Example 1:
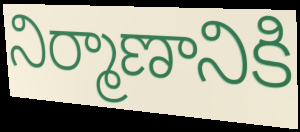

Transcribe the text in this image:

నిర్మాణానికి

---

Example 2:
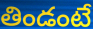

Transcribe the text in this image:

తిండంటే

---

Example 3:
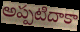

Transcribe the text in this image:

అప్పటిదాకా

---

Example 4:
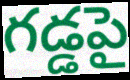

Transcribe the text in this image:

గడ్డపై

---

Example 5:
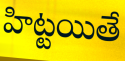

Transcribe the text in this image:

హిట్టయితే